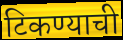
टिकण्याची